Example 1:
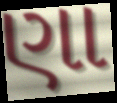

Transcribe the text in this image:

ણા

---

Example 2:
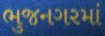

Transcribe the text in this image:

ભુજનગરમાં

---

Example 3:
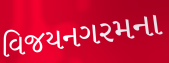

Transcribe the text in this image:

વિજયનગરમના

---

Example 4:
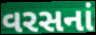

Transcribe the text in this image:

વરસનાં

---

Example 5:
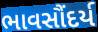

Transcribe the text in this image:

ભાવસૌંદર્ય